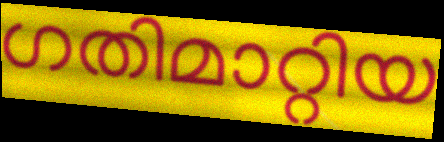
ഗതിമാറ്റിയ